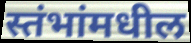
स्तंभांमधील